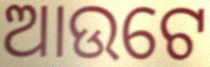
ଆଉଟେ